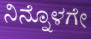
ನಿನ್ನೊಳಗೇ